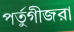
পর্তুগীজরা